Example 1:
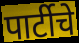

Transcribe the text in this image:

पार्टीचे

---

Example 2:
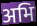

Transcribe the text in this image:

अभि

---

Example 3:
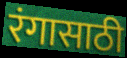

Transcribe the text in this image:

रंगासाठी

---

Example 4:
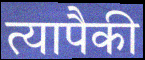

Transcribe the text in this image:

त्यापैकी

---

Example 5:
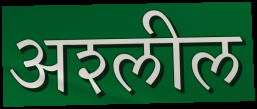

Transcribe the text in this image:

अश्लील